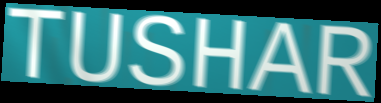
TUSHAR